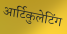
आर्टिकुलेटिंग